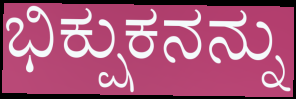
ಭಿಕ್ಷುಕನನ್ನು